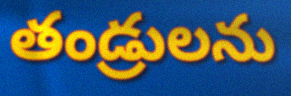
తండ్రులను